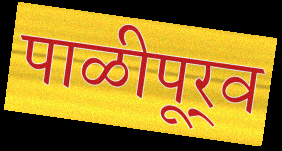
पाळीपूर्व